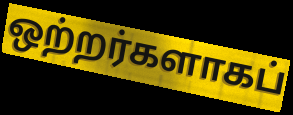
ஒற்றர்களாகப்